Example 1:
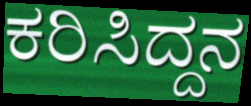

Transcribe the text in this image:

ಕರಿಸಿದ್ದನ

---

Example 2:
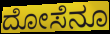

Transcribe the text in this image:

ದೋಸೆನೂ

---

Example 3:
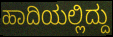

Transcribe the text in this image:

ಹಾದಿಯಲ್ಲಿದ್ದು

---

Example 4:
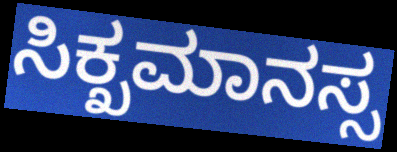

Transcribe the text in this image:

ಸಿಕ್ಖಮಾನಸ್ಸ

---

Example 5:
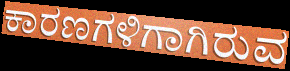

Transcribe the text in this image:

ಕಾರಣಗಳಿಗಾಗಿರುವ